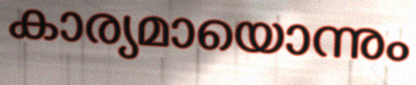
കാര്യമായൊന്നും